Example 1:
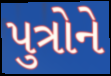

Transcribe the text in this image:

પુત્રોને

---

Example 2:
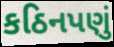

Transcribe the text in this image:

કઠિનપણું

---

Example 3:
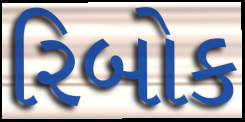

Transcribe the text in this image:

રિબોક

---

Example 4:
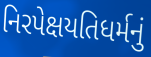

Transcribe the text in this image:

નિરપેક્ષયતિધર્મનું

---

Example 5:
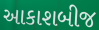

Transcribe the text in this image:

આકાશબીજ